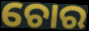
ଚୋର